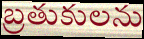
బ్రతుకులను